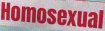
Homosexual